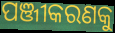
ପଞ୍ଜୀକରଣକୁ